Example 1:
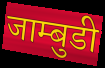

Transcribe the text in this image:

जाम्बुडी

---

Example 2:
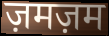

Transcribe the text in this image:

ज़मज़म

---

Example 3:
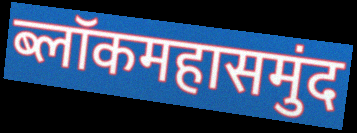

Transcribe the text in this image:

ब्लॉकमहासमुंद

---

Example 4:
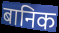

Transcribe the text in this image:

बानिक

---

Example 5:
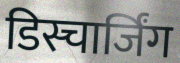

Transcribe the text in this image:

डिस्चार्जिंग